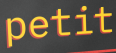
petit